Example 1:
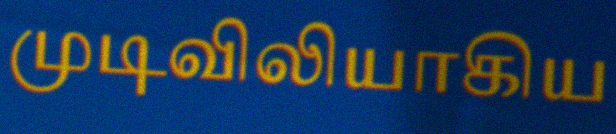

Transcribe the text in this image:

முடிவிலியாகிய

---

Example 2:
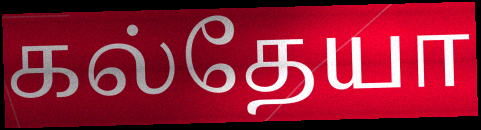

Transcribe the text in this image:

கல்தேயா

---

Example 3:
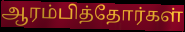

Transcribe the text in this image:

ஆரம்பித்தோர்கள்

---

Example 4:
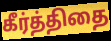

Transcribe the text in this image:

கீர்த்திதை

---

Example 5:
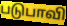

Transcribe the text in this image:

படுபாவி